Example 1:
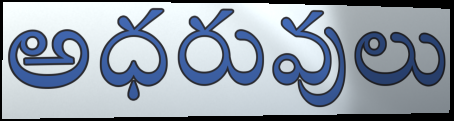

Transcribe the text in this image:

అధరువులు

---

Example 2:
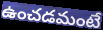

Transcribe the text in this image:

ఉంచడమంటే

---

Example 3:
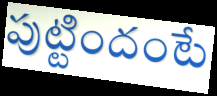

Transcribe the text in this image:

పుట్టిందంటే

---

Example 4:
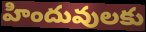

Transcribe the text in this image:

హిందువులకు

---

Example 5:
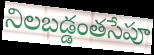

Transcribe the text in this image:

నిలబడ్డంతసేపూ